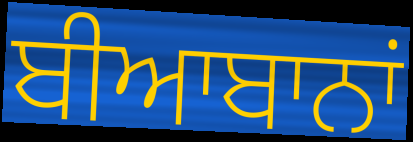
ਬੀਆਬਾਨਾਂ